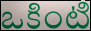
ఒకింటి